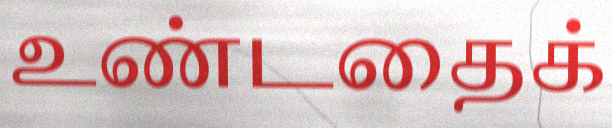
உண்டதைக்